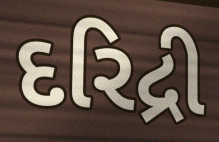
દરિદ્રી